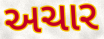
અચાર